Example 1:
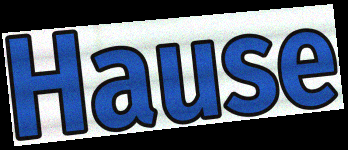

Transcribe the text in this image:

Hause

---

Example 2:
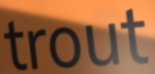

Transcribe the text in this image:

trout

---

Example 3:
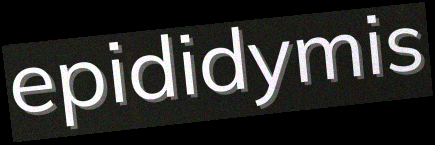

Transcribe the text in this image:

epididymis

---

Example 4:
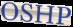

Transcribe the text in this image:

OSHP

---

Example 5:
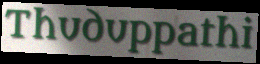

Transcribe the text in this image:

Thuduppathi